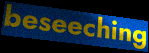
beseeching